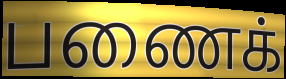
பணைக்